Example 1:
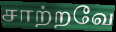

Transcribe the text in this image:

சாற்றவே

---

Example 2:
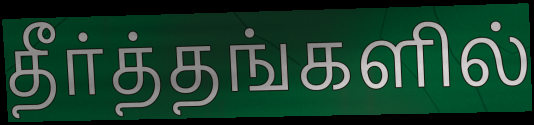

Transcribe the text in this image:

தீர்த்தங்களில்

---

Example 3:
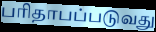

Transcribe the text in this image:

பரிதாபப்படுவது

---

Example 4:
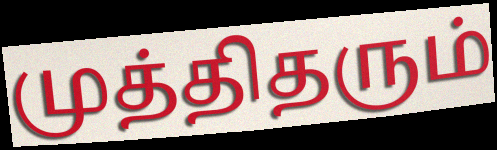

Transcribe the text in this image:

முத்திதரும்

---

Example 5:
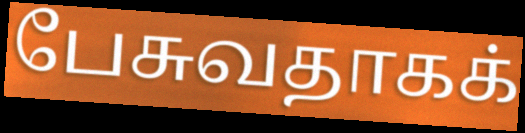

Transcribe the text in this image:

பேசுவதாகக்